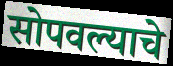
सोपवल्याचे